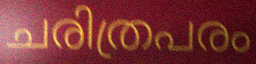
ചരിത്രപരം